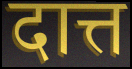
दात्त